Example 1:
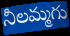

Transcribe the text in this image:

నీలమ్మగు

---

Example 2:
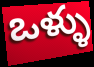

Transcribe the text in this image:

ఒళ్ళు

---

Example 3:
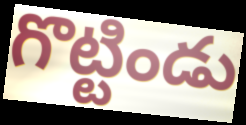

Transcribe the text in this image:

గొట్టిండు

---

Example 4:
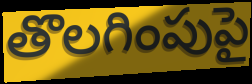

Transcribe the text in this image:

తొలగింపుపై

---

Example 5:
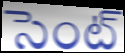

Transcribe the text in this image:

సెంట్